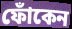
ফোঁকেন